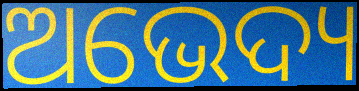
ଅଭେଦ୍ୟ